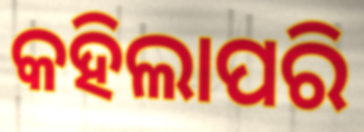
କହିଲାପରି